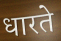
धारते